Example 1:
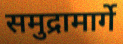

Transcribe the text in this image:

समुद्रामार्गे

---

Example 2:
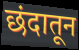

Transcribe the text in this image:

छंदातून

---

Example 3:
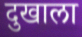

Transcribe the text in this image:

दुखाला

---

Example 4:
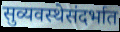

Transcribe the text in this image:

सुव्यवस्थेसंदर्भात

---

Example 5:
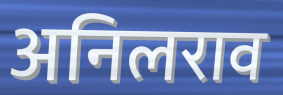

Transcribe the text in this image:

अनिलराव